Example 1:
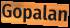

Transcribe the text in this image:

Gopalan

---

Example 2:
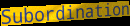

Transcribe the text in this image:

Subordination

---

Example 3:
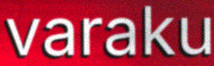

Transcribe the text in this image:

varaku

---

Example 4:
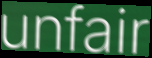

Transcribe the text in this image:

unfair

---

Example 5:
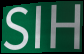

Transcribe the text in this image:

SIH